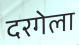
दरगेला